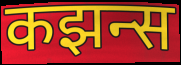
कझन्स